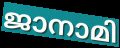
ജാനാമി